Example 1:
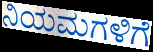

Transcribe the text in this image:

ನಿಯಮಗಳಿಗೆ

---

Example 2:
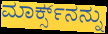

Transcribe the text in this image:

ಮಾರ್ಕ್ಸ್‌ನನ್ನು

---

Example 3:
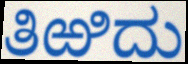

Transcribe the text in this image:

ತಿಱಿದು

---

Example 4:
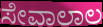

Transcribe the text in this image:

ಸೇವಾಲಾಲ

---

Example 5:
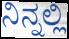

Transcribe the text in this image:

ನಿನ್ನಲ್ಲಿ